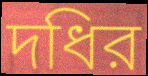
দধির